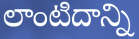
లాంటిదాన్ని